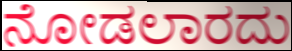
ನೋಡಲಾರದು